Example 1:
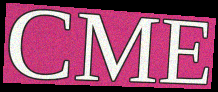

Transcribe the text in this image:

CME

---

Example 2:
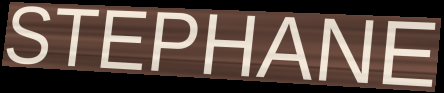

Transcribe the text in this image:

STEPHANE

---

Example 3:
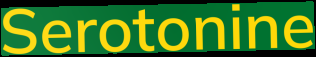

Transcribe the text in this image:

Serotonine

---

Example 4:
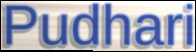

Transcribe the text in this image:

Pudhari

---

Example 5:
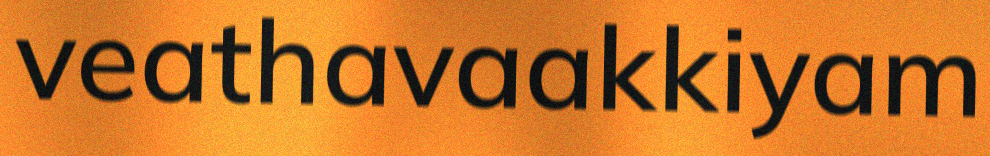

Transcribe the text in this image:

veathavaakkiyam